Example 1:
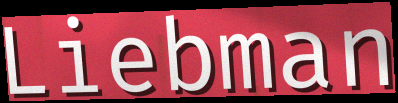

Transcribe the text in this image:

Liebman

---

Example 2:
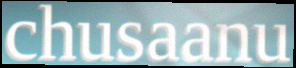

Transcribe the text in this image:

chusaanu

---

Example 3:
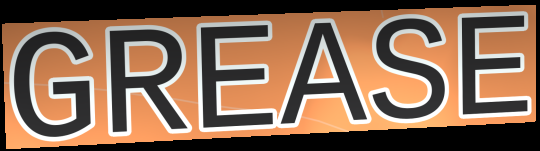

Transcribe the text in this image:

GREASE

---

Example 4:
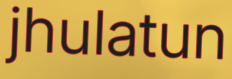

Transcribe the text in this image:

jhulatun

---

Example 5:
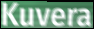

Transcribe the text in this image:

Kuvera